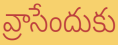
వ్రాసేందుకు